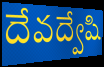
దేవద్వేషి